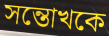
সন্তোখকে